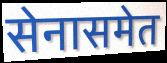
सेनासमेत